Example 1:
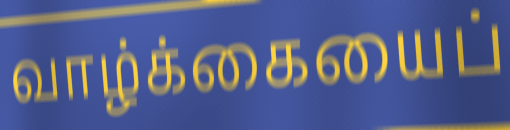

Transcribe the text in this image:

வாழ்க்கையைப்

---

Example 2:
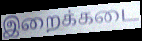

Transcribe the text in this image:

இறைக்கடை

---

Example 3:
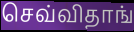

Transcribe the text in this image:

செவ்விதாங்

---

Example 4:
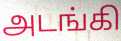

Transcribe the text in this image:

அடங்கி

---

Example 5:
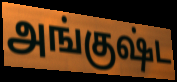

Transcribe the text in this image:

அங்குஷ்ட